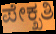
ಪೇಕ್ಖತಿ